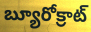
బ్యూరోక్రాట్